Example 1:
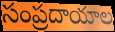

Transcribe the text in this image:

సంప్రదాయాల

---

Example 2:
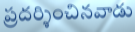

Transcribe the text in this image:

ప్రదర్శించినవాడు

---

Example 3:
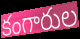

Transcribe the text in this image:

కంగారుల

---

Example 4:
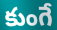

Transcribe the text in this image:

కుంగే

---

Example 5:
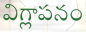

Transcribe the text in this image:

విగ్లాపనం